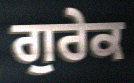
ਗੁਰੇਕ